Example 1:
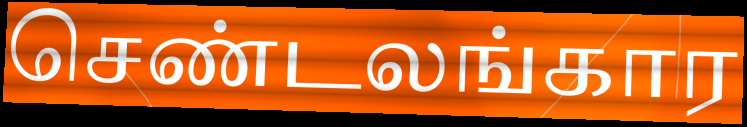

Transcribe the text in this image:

செண்டலங்கார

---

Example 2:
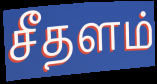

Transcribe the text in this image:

சீதளம்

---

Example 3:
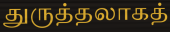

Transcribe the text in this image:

துருத்தலாகத்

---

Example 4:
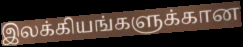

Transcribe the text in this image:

இலக்கியங்களுக்கான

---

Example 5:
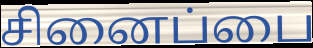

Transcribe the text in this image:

சினைப்பை